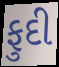
ફુદી